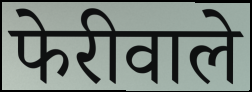
फेरीवाले